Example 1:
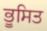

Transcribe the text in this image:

ਭੂਸਿਤ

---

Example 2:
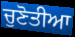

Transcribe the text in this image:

ਚੁਣੋਤੀਆ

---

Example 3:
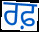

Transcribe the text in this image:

ਰਫ਼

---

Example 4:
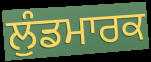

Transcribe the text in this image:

ਲੁੰਡਮਾਰਕ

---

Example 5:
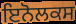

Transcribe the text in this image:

ਇਨੋਲਕਸ